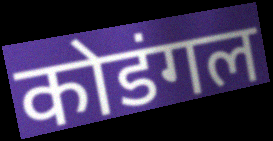
कोडंगल